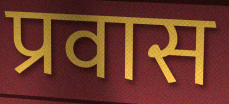
प्रवास